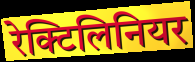
रेक्टिलिनियर